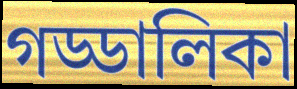
গড্ডালিকা